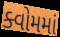
ક્વોમમાં